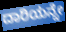
ದಾರಿಯನ್ನೇ